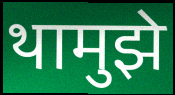
थामुझे